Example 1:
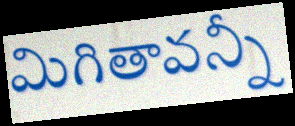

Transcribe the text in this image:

మిగితావన్నీ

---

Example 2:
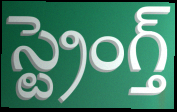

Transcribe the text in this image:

స్ట్రెంగ్త్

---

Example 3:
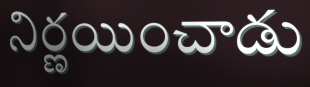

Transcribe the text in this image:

నిర్ణయించాడు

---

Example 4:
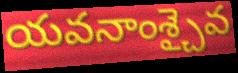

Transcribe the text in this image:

యవనాంశ్చైవ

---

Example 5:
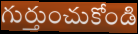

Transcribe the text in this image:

గుర్తుంచుకోండి